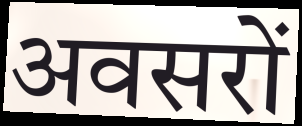
अवसरों